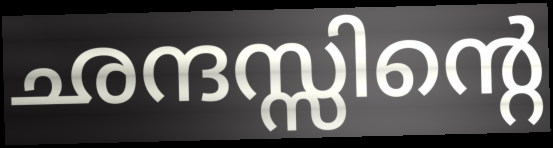
ഛന്ദസ്സിന്റെ